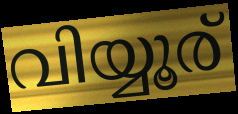
വിയ്യൂര്